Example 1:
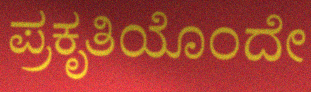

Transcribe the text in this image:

ಪ್ರಕೃತಿಯೊಂದೇ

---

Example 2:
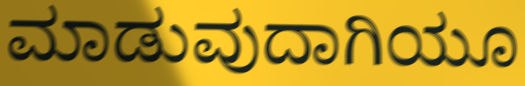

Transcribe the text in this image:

ಮಾಡುವುದಾಗಿಯೂ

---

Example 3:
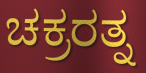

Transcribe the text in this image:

ಚಕ್ರರತ್ನ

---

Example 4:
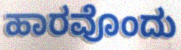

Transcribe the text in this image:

ಹಾರವೊಂದು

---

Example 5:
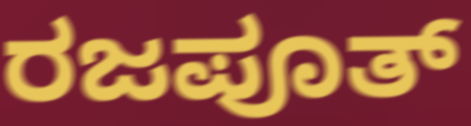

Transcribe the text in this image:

ರಜಪೂತ್